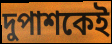
দুপাশকেই